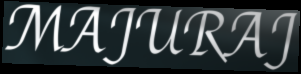
MAJURAJ